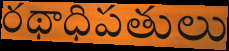
రథాధిపతులు